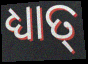
ଧ୍ୟାତ୍